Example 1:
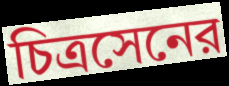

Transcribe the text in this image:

চিত্রসেনের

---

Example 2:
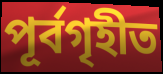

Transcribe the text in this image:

পূর্বগৃহীত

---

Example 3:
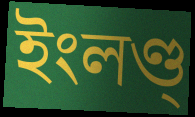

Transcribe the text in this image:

ইংলণ্ড্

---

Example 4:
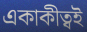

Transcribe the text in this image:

একাকীত্বই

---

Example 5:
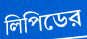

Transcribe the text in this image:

লিপিডের